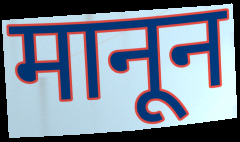
मानून